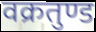
वक्रतुण्ड